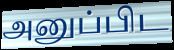
அனுப்பிட